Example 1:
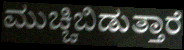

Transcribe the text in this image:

ಮುಚ್ಚಿಬಿಡುತ್ತಾರೆ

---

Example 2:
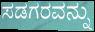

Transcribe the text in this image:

ಸಡಗರವನ್ನು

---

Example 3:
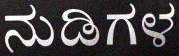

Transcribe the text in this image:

ನುಡಿಗಳ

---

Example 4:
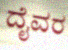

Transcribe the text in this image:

ದೈವರ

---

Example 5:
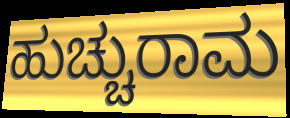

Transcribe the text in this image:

ಹುಚ್ಚುರಾಮ